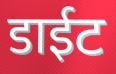
डाईट